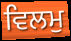
ਵਿਲਮੁ